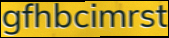
gfhbcimrst